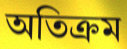
অতিক্ৰম